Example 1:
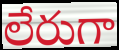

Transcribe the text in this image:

లేరుగా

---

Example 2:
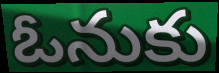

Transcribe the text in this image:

ఓనుకు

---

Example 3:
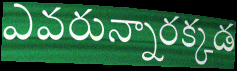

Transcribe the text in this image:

ఎవరున్నారక్కడ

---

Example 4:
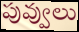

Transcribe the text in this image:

పువ్వులు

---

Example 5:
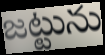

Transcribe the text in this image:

జట్టును